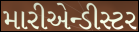
મારીએન્ડીસ્ટર